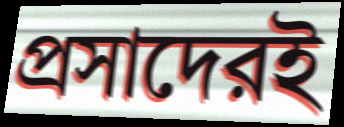
প্রসাদেরই